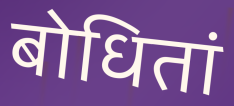
बोधितां